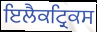
ਇਲੈਕਟ੍ਰਿਕਸ